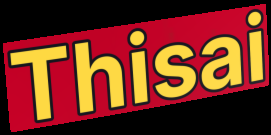
Thisai